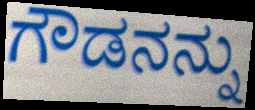
ಗೌಡನನ್ನು